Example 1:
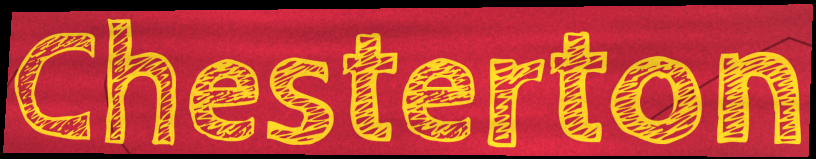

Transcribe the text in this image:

Chesterton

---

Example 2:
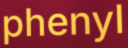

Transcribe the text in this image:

phenyl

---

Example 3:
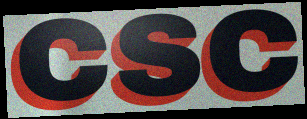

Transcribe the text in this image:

csc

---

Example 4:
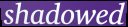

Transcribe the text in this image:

shadowed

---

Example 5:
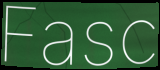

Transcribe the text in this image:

Fasc